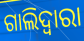
ଗାଲିଦ୍ଵାରା